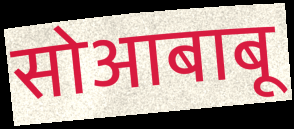
सोआबाबू